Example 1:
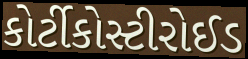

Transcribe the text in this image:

કોર્ટીકોસ્ટીરોઈડ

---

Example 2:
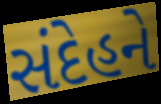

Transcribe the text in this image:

સંદેહને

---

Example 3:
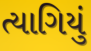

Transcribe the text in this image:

ત્યાગિયું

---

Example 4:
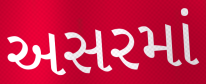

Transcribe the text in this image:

અસરમાં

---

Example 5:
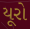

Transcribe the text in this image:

યૂરો